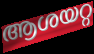
ആശയറ്റ